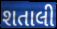
શતાલી